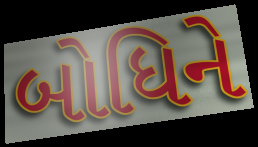
બોધિને